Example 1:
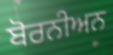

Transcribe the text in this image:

ਬੋਰਨੀਅਨ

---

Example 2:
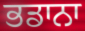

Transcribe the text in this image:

ਭਡਾਨਾ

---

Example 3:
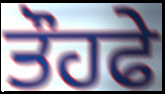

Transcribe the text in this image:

ਤੌਹਫੇ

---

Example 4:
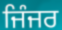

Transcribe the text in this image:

ਜਿੰਜਰ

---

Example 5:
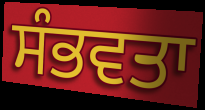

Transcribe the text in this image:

ਸੰਭਵਤਾ